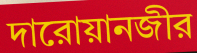
দারোয়ানজীর